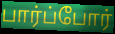
பார்ப்போர்